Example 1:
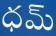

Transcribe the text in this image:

ధమ్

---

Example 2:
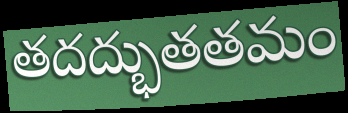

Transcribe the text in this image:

తదద్భుతతమం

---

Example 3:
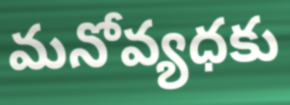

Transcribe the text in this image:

మనోవ్యధకు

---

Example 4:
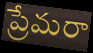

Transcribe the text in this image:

ప్రేమరా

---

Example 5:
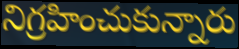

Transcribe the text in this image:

నిగ్రహించుకున్నారు